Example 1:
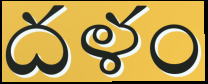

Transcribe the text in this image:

దళం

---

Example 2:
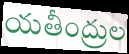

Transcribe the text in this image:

యతీంద్రుల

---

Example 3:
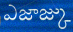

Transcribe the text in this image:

ఎజాజ్కు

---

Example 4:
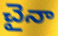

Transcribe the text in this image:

చైనా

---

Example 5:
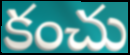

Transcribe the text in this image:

కంచు